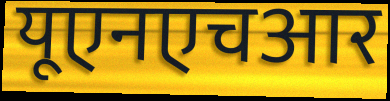
यूएनएचआर